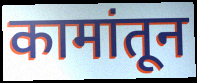
कामांतून